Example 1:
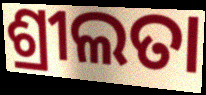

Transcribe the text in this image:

ଶ୍ରୀଲତା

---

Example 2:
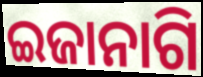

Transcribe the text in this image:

ଇଜାନାଗି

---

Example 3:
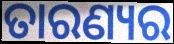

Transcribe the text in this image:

ତାରଣ୍ୟର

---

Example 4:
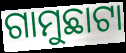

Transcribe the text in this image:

ଗାମୁଛାଟା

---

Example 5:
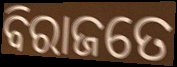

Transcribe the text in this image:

ବିରାଜତେ